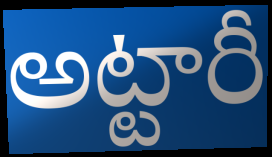
అట్టారీ